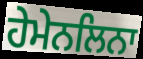
ਹੇਮੇਨਲਿਨਾ